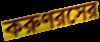
করুণরসের